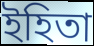
ইহিতা